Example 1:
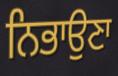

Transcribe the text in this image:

ਨਿਭਾਉਣਾ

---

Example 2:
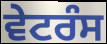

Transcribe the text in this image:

ਵੇਟਰੰਸ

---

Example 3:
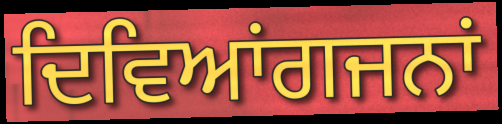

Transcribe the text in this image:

ਦਿਵਿਆਂਗਜਨਾਂ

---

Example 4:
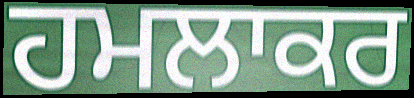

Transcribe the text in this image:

ਹਮਲਾਕਰ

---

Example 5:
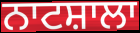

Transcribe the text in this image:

ਨਾਟਸ਼ਾਲਾ